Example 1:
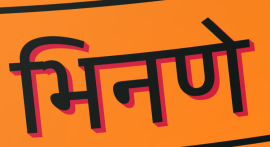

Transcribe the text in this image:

भिनणे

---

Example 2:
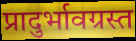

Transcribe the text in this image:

प्रादुर्भावग्रस्त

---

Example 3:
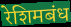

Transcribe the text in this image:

रेशिमबंध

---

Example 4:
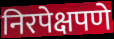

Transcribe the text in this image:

निरपेक्षपणे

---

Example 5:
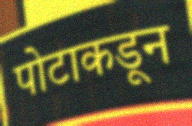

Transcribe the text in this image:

पोटाकडून